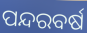
ପନ୍ଦରବର୍ଷ